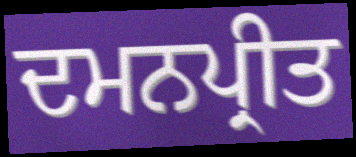
ਦਮਨਪ੍ਰੀਤ